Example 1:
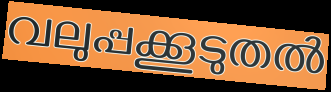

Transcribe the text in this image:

വലുപ്പക്കൂടുതൽ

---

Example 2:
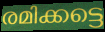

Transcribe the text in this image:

രമിക്കട്ടെ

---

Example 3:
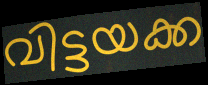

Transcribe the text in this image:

വിട്ടയക്ക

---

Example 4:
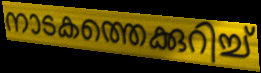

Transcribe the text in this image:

നാടകത്തെക്കുറിച്ച്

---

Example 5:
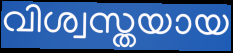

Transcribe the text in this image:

വിശ്വസ്തയായ